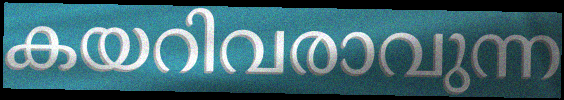
കയറിവരാവുന്ന